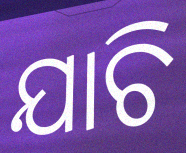
ଯାଚି